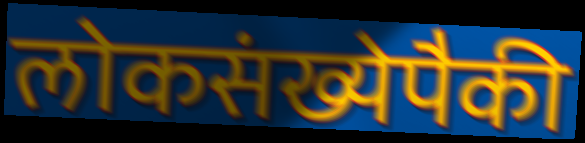
लोकसंख्येपैकी